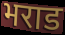
भराड